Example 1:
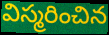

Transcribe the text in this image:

విస్మరించిన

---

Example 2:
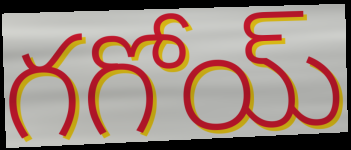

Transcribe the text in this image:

గగోయ్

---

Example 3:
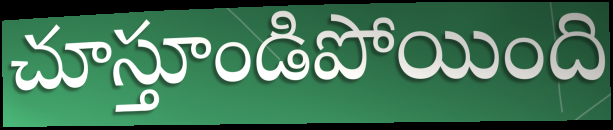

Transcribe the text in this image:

చూస్తూండిపోయింది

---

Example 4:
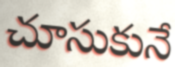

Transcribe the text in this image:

చూసుకునే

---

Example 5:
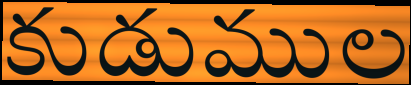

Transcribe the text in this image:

కుడుముల